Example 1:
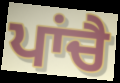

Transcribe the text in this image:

ਪਾਂਚੈ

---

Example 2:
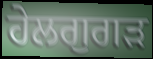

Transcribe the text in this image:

ਹੇਲਗੁਗੜ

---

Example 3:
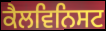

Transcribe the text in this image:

ਕੈਲਵਿਨਿਸਟ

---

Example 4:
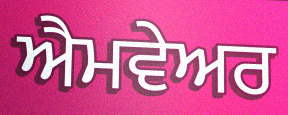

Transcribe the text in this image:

ਐਮਵੇਅਰ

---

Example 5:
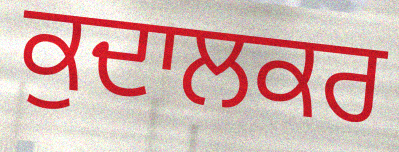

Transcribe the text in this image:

ਕੁਦਾਲਕਰ